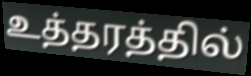
உத்தரத்தில்